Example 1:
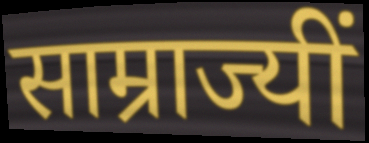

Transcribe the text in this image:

साम्राज्यीं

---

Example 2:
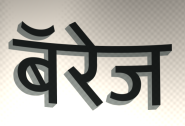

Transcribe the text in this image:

बॅरेज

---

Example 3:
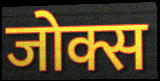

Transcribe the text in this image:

जोक्स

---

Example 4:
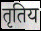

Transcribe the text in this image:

तृतिय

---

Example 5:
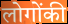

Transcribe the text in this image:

लोगोंकी